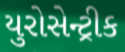
યુરોસેન્ટ્રીક